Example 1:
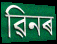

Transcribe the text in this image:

ৱিনৰ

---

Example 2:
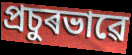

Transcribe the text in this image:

প্ৰচুৰভাৱে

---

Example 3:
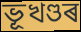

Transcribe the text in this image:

ভূখণ্ডৰ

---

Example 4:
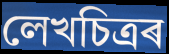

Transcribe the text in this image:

লেখচিত্ৰৰ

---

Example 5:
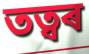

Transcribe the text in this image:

তত্বৰ